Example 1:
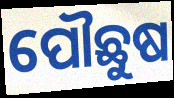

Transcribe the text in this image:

ପୌଛୁଷ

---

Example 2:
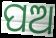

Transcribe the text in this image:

ପଅ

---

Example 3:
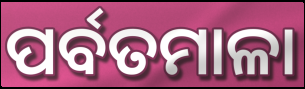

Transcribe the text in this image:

ପର୍ବତମାଳା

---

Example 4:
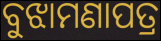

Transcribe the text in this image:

ବୁଝାମଣାପତ୍ର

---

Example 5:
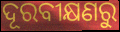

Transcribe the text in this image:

ଦୂରବୀକ୍ଷଣରୁ